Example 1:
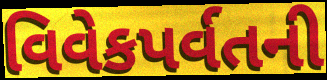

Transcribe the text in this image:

વિવેકપર્વતની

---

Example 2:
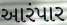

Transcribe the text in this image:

આરંપાર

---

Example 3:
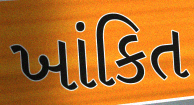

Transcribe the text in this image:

ખાંકિત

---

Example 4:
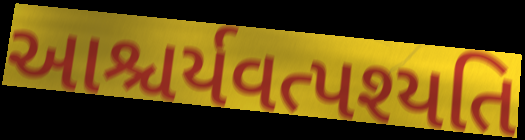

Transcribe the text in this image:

આશ્ચર્યવત્પશ્યતિ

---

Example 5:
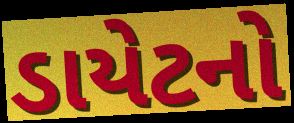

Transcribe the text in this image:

ડાયેટનો